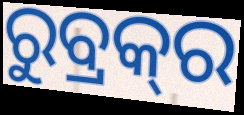
ରୁବ୍ରକ୍‍ର